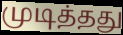
முடித்தது